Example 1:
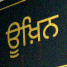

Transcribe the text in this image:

ਊਖ਼ਿਨ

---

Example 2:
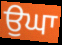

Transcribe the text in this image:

ਉਘਾ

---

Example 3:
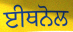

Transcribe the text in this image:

ਈਥਨੋਲ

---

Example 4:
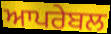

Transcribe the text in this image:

ਆਪਰੇਬਲ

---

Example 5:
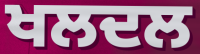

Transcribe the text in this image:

ਖਲਦਲ